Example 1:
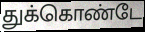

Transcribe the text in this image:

துக்கொண்டே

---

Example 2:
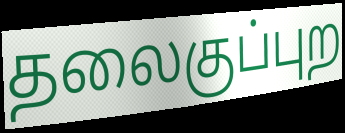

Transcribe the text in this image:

தலைகுப்புற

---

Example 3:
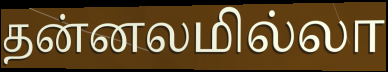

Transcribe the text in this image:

தன்னலமில்லா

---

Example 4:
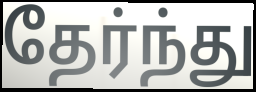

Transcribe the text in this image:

தேர்ந்து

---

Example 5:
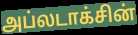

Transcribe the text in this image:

அப்லடாக்சின்